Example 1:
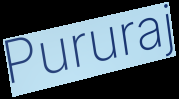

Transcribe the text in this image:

Pururaj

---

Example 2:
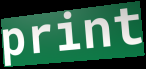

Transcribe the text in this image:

print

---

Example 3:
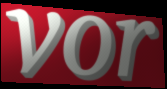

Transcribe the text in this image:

vor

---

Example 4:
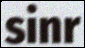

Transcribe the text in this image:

sinr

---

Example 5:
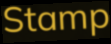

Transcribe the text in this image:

Stamp